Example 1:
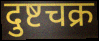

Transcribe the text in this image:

दुष्टचक्र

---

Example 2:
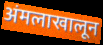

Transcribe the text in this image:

अंमलाखालून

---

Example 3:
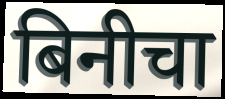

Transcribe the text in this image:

बिनीचा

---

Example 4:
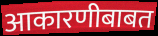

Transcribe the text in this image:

आकारणीबाबत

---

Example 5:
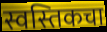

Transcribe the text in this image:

स्वस्तिकचा